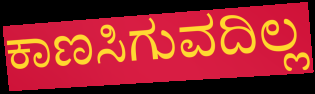
ಕಾಣಸಿಗುವದಿಲ್ಲ